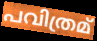
പവിത്രമ്